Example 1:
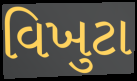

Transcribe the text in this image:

વિખુટા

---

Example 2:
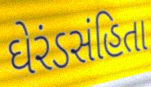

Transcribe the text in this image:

ઘેરંડસંહિતા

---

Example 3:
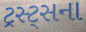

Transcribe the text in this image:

ટ્રસ્ટ્સના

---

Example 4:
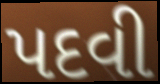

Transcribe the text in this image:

પદવી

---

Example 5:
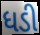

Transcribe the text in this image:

ધડી